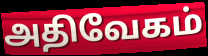
அதிவேகம்